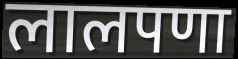
लालपणा